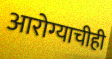
आरोग्याचीही